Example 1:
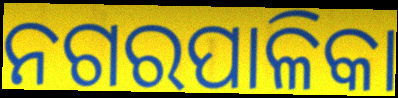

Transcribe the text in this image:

ନଗରପାଳିକା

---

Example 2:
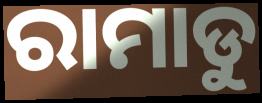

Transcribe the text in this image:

ରାମାଡୁ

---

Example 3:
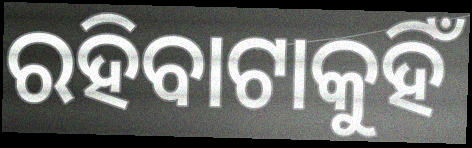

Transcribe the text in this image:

ରହିବାଟାକୁହିଁ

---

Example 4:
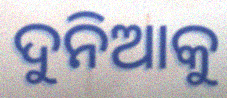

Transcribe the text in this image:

ଦୁନିଆକୁ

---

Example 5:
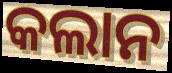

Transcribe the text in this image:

କଲାନ